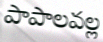
పాపాలవల్ల